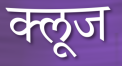
क्लूज